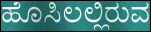
ಹೊಸಿಲಲ್ಲಿರುವ